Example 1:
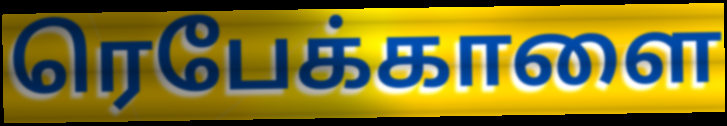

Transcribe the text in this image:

ரெபேக்காளை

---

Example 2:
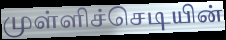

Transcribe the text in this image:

முள்ளிச்செடியின்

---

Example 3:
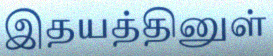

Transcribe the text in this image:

இதயத்தினுள்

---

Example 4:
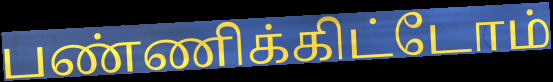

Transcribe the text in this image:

பண்ணிக்கிட்டோம்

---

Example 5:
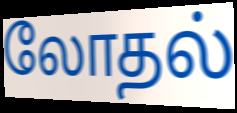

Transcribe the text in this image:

லோதல்